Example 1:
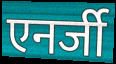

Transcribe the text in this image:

एनर्जी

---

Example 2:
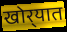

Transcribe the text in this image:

खोर्‍यात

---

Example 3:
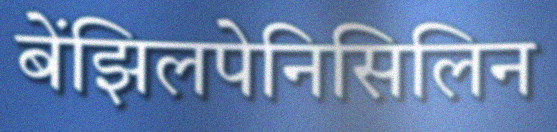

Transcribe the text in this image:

बेंझिलपेनिसिलिन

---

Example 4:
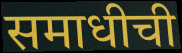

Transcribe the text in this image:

समाधीची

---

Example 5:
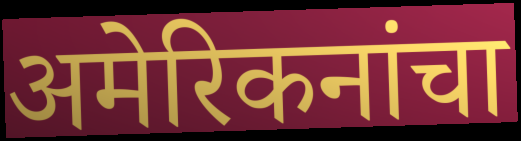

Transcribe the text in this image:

अमेरिकनांचा